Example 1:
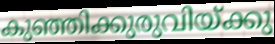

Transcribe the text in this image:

കുഞ്ഞിക്കുരുവിയ്ക്കു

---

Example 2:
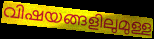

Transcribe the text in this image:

വിഷയങ്ങളിലുമുള്ള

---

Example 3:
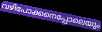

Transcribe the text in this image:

വഴിപോക്കനെപ്പോലെയും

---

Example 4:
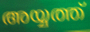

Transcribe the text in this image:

അയ്യത്ത്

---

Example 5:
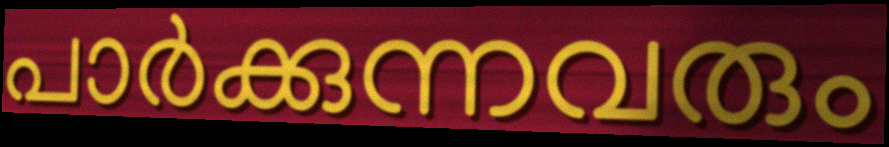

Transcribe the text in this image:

പാർക്കുന്നവരും